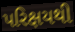
પરિક્ષયથી